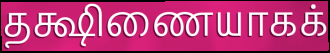
தக்ஷிணையாகக்